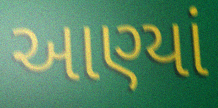
આણ્યાં